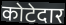
कोटेदार